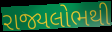
રાજ્યલોભથી